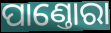
ପାଣ୍ତୋରା